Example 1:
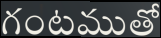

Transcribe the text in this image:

గంటముతో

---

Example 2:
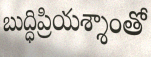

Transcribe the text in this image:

బుద్ధిప్రియశ్శాంతో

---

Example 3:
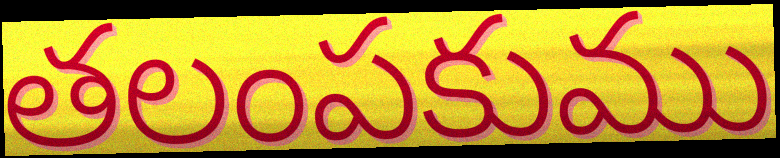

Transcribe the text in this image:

తలంపకుము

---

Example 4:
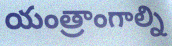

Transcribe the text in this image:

యంత్రాంగాల్ని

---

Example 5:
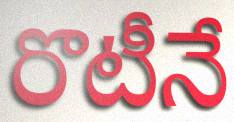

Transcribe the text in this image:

రొటీనే